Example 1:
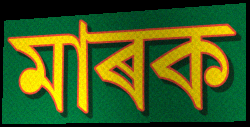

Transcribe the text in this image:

মাৰক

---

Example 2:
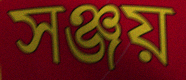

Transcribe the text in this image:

সঞ্জয়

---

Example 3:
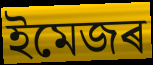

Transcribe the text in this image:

ইমেজৰ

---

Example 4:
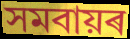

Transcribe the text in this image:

সমবায়ৰ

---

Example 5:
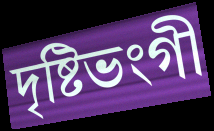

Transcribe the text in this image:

দৃষ্টিভংগী